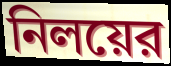
নিলয়ের